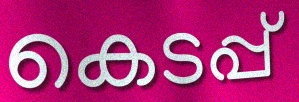
കെടപ്പ്